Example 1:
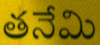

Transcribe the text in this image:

తనేమి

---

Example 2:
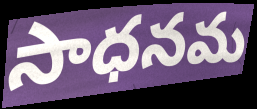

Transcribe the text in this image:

సాధనమ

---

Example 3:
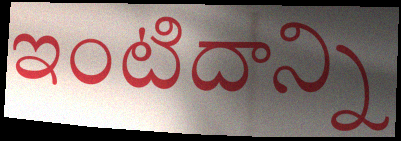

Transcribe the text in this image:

ఇంటిదాన్ని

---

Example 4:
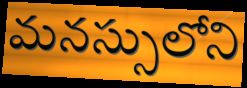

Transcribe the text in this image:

మనస్సులోని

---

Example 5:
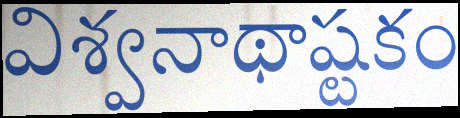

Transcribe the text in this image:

విశ్వనాథాష్టకం